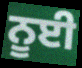
ਨੂਈ